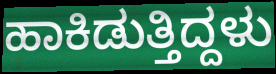
ಹಾಕಿಡುತ್ತಿದ್ದಳು